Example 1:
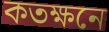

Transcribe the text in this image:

কতক্ষনে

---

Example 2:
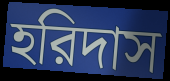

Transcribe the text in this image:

হরিদাস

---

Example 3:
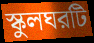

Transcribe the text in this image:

স্কুলঘরটি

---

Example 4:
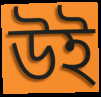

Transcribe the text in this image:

উই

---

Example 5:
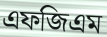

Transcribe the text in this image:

এফজিএম